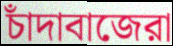
চাঁদাবাজেরা